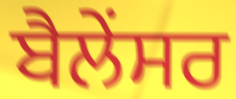
ਬੈਲੇਂਸਰ